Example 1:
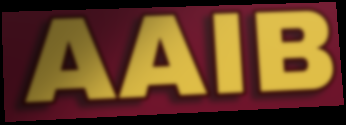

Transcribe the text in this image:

AAIB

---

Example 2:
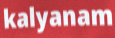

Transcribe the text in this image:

kalyanam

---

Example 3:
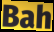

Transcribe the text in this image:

Bah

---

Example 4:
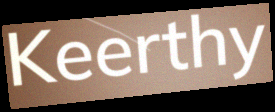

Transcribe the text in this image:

Keerthy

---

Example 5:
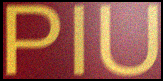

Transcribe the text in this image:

PIU